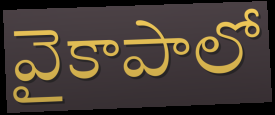
వైకాపాలో